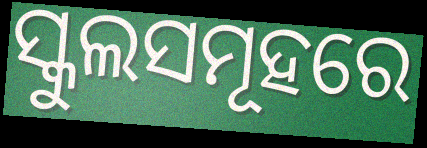
ସ୍କୁଲସମୂହରେ